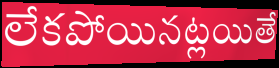
లేకపోయినట్లయితే